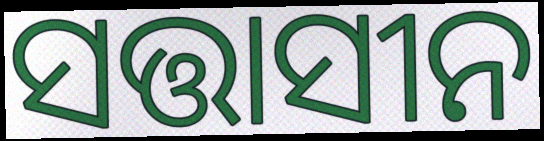
ସତ୍ତାସୀନ